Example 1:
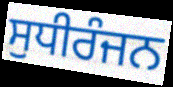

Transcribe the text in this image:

ਸੁਧੀਰੰਜਨ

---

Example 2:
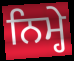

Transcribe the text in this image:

ਨਿਮ੍ਹੇ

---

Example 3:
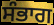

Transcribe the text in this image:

ਸੰਭਾਗ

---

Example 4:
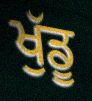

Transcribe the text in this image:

ਖੁੱਡੂ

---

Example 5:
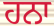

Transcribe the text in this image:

ਹਨਾ